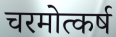
चरमोत्कर्ष